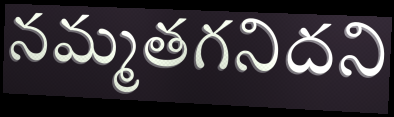
నమ్మతగనిదని